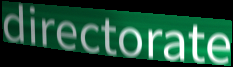
directorate